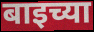
बाइच्या